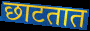
छाटतात